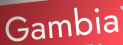
Gambia